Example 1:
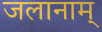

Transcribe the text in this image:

जलानाम्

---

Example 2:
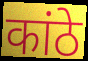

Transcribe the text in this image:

कांठे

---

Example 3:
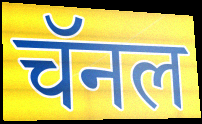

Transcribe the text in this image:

चॅनल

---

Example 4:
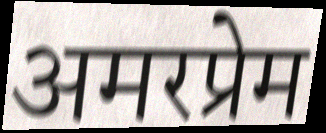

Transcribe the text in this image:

अमरप्रेम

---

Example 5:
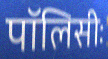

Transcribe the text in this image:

पॉलिसीः